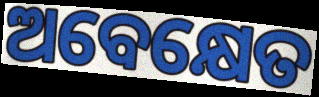
ଅବେକ୍ଷେତ